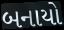
બનાયો